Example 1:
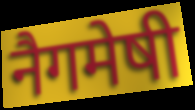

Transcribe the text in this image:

नैगमेषी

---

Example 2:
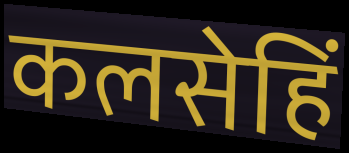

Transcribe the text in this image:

कलसेहिं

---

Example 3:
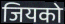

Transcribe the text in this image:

जियको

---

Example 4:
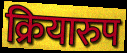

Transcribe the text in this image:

क्रियारुप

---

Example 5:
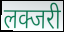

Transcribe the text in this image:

लक्जरी